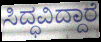
ಸಿದ್ಧವಿದ್ದಾರೆ